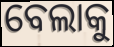
ବେଲାକୁ